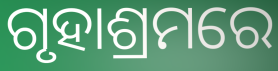
ଗୃହାଶ୍ରମରେ